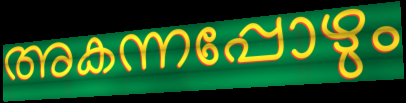
അകന്നപ്പോഴും